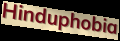
Hinduphobia